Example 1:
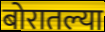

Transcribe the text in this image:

बोरातल्या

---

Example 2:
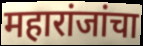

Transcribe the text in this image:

महारांजांचा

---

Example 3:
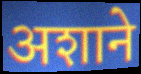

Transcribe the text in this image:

अशाने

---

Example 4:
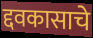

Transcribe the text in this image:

द्दवकासाचे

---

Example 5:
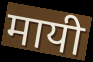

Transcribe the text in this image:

मायी